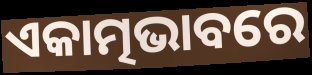
ଏକାତ୍ମଭାବରେ